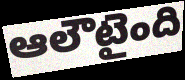
ఆలౌటైంది